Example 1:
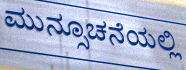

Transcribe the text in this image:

ಮುನ್ಸೂಚನೆಯಲ್ಲಿ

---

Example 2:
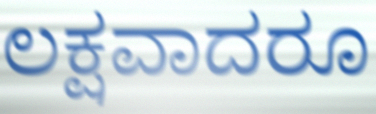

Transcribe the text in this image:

ಲಕ್ಷವಾದರೂ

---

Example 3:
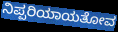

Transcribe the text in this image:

ನಿಪ್ಪರಿಯಾಯತೋವ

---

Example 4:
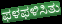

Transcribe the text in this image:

ಫಳಫಳಿಸಿತು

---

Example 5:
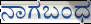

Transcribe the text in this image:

ನಾಗಬಂಧ